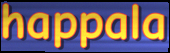
happala